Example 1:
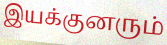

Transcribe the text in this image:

இயக்குனரும்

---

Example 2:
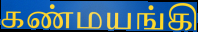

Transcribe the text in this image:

கண்மயங்கி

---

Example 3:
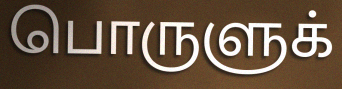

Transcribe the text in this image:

பொருளுக்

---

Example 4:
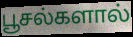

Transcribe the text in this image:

பூசல்களால்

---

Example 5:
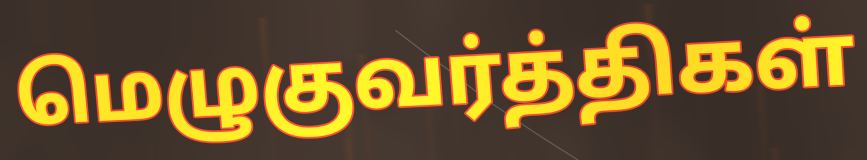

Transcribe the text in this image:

மெழுகுவர்த்திகள்